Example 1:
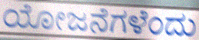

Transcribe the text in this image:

ಯೋಜನೆಗಳೆಂದು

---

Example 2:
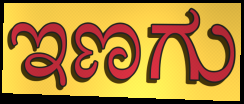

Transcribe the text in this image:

ಇಣಗು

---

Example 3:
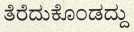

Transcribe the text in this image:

ತೆರೆದುಕೊಂಡದ್ದು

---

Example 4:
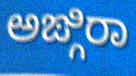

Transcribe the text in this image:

ಅಙ್ಗಿರಾ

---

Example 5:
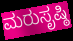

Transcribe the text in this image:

ಮರುಸೃಷ್ಠಿ